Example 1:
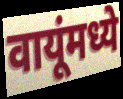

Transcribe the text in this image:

वायूंमध्ये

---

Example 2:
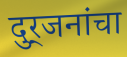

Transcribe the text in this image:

दुर्जनांचा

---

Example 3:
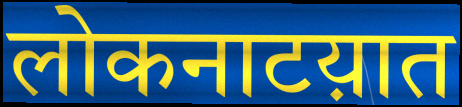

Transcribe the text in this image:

लोकनाटय़ात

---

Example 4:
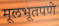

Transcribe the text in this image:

मूलभूतपणे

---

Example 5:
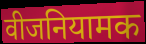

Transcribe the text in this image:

वीजनियामक